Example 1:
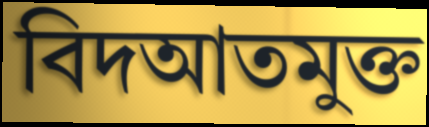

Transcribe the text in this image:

বিদআতমুক্ত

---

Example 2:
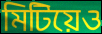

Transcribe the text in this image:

মিটিয়েও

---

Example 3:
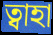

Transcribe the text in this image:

ত্বাহা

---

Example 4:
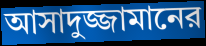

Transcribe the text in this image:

আসাদুজ্জামানের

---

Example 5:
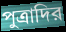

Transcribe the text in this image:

পুত্রাদির